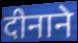
दीनाने